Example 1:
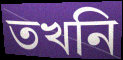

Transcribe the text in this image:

তখনি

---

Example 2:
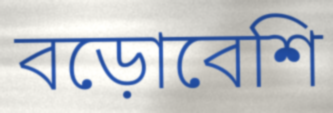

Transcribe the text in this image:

বড়োবেশি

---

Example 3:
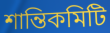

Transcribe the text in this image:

শান্তিকমিটি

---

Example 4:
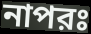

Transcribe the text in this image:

নাপরঃ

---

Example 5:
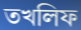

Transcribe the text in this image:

তখলিফ